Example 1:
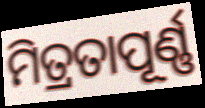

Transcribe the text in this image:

ମିତ୍ରତାପୂର୍ଣ୍ଣ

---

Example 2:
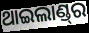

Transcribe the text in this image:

ଥାଇଲାଣ୍ଡ୍‌ର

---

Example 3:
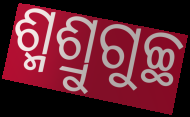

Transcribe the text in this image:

ଶ୍ମଶ୍ରୁଗୁଚ୍ଛ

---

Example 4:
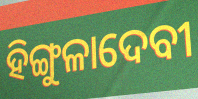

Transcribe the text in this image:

ହିଙ୍ଗୁଳାଦେବୀ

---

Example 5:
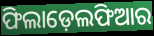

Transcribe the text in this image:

ଫିଲାଡ଼େଲଫିଆର